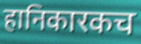
हानिकारकच